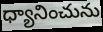
ధ్యానించును